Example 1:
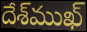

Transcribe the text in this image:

దేశ్‌ముఖ్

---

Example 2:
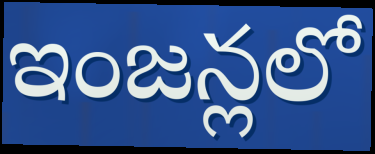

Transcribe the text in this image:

ఇంజన్లలో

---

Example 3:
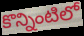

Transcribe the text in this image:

కొన్నింటిలో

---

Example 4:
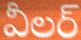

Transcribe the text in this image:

వీలర్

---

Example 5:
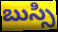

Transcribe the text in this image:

బుస్సి